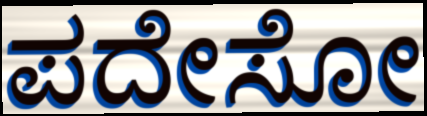
ಪದೇಸೋ